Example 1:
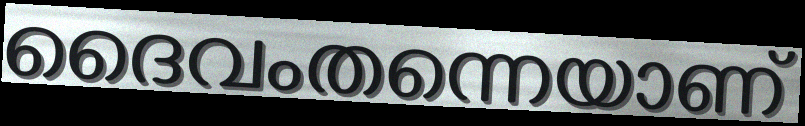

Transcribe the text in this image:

ദൈവംതന്നെയാണ്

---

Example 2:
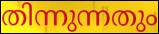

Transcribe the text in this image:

തിന്നുന്നതും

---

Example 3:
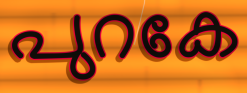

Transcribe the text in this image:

പുറകേ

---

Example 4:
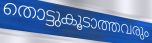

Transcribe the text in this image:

തൊട്ടുകൂടാത്തവരും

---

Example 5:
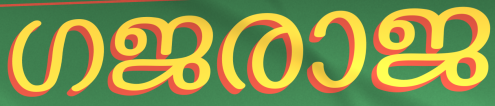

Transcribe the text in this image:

ഗജരാജ